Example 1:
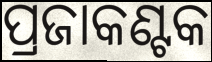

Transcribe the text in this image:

ପ୍ରଜାକଣ୍ଟକ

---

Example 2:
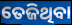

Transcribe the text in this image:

ତେଜିଥିବା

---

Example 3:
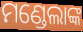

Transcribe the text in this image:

ମଣ୍ଡେଲାଙ୍କ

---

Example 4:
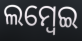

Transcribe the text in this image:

ଲମ୍ଵେଇ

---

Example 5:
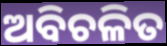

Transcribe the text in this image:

ଅବିଚଳିତ